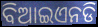
ବିଆଇଏନଡି